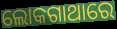
ଲୋକଗାଥାରେ